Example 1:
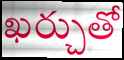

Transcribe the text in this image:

ఖర్చుతో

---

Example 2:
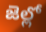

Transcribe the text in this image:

జెల్లో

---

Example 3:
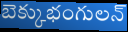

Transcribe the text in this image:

బెక్కుభంగులన్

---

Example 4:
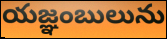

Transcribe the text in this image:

యజ్ఞంబులును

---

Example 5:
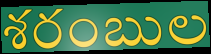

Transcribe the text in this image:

శరంబుల